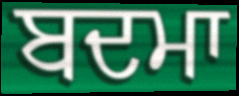
ਬਦਮਾ